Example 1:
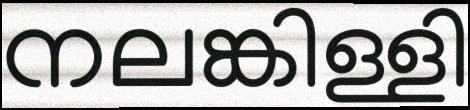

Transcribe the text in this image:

നലങ്കിള്ളി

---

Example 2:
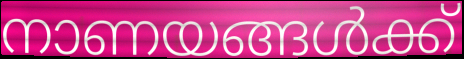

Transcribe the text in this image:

നാണയങ്ങൾക്ക്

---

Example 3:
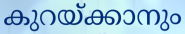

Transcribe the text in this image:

കുറയ്ക്കാനും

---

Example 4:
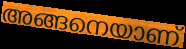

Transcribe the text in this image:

അങ്ങനെയാണ്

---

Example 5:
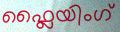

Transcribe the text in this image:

ഫ്ലൈയിംഗ്